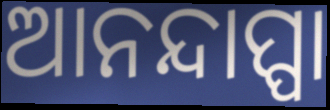
ଆନନ୍ଦାପ୍ପା